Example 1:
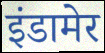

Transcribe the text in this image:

इंडामेर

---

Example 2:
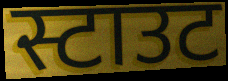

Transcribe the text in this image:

स्टाउट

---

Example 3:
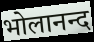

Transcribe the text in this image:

भोलानन्द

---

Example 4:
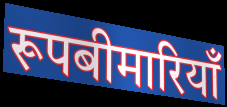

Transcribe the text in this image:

रूपबीमारियाँ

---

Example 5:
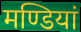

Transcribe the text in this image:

मण्डियां